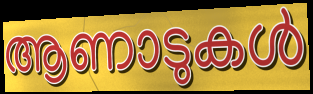
ആണാടുകൾ